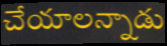
చేయాలన్నాడు